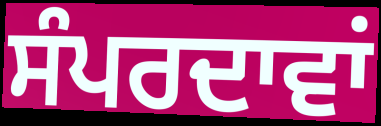
ਸੰਪਰਦਾਵਾਂ